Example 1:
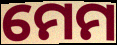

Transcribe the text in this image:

ମେମ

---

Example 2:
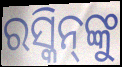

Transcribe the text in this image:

ରସ୍କିନ୍‌ଙ୍କୁ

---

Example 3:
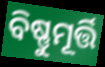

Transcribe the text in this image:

ବିଷ୍ଣୁମୂର୍ତ୍ତି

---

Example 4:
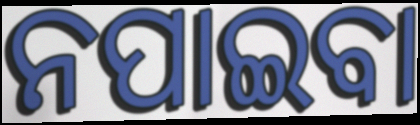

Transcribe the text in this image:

ନପାଇବା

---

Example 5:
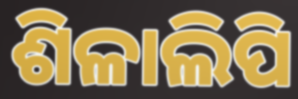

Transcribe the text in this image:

ଶିଳାଲିପି